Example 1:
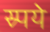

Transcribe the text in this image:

स्र्पये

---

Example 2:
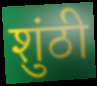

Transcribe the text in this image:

शुंठी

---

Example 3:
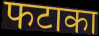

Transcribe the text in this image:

फटाका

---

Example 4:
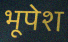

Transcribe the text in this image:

भूपेश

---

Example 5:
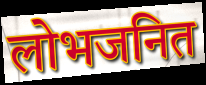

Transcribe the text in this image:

लोभजनित